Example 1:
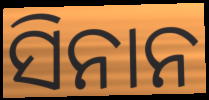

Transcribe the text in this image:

ସିନାନ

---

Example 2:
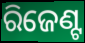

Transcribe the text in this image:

ରିଜେଣ୍ଟ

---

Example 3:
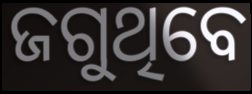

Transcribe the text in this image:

ଜଗୁଥିବେ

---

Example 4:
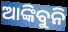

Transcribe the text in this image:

ଆଙ୍କିବୁନି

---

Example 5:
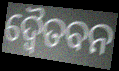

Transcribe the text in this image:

ଦ୍ବୈତବନ